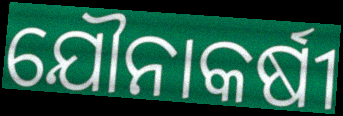
ଯୌନାକର୍ଷୀ